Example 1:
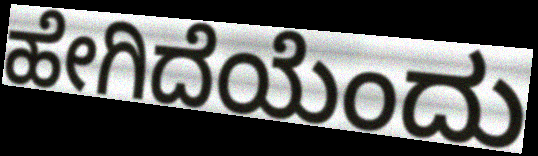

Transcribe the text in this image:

ಹೇಗಿದೆಯೆಂದು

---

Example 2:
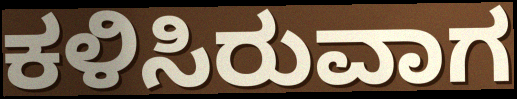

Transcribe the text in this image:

ಕಳಿಸಿರುವಾಗ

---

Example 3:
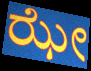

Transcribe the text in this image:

ಝೇ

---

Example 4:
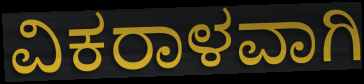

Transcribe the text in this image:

ವಿಕರಾಳವಾಗಿ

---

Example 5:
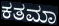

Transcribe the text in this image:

ಕತಮಾ